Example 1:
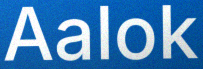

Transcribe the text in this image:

Aalok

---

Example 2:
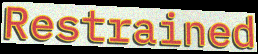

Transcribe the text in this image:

Restrained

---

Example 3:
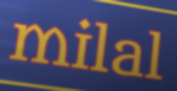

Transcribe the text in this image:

milal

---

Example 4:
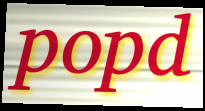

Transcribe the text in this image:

popd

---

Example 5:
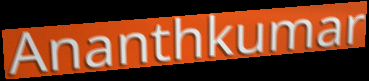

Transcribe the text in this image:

Ananthkumar